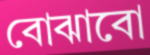
বোঝাবো